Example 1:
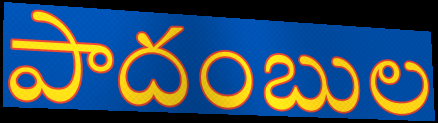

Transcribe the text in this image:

పాదంబుల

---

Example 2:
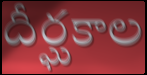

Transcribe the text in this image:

దీర్ఘకాల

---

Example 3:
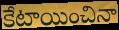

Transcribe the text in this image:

కేటాయించినా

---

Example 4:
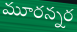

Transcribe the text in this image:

మూరన్నర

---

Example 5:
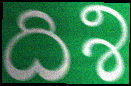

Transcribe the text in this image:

దిశి